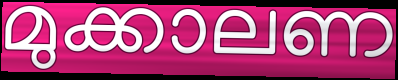
മുക്കാലണ